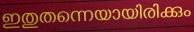
ഇതുതന്നെയായിരിക്കും